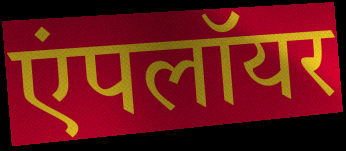
एंपलॉयर